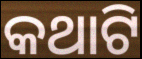
କଥାଟି